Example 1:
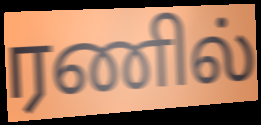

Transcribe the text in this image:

ரணில்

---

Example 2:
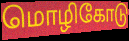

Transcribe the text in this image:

மொழிகோடு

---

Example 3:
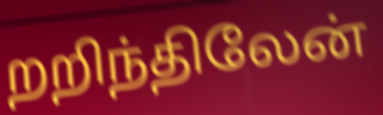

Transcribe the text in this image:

றறிந்திலேன்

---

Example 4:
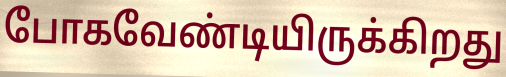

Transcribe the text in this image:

போகவேண்டியிருக்கிறது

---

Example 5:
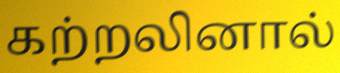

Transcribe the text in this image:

கற்றலினால்